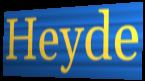
Heyde